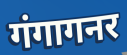
गंगागनर